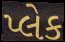
પ્લેક